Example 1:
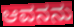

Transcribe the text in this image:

ಆವನನು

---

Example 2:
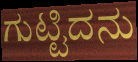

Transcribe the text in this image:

ಗುಟ್ಟಿದನು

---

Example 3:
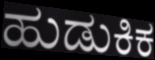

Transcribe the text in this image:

ಹುಡುಕಿಕ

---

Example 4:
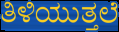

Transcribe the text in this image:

ತಿಳಿಯುತ್ತಲೆ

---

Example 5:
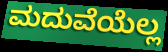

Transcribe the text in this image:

ಮದುವೆಯೆಲ್ಲ